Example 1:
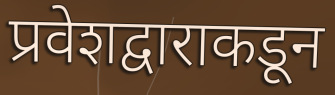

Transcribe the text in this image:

प्रवेशद्वाराकडून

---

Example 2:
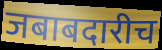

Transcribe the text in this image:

जबाबदारीच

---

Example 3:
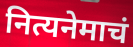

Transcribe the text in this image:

नित्यनेमाचं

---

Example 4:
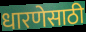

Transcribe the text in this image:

धारणेसाठी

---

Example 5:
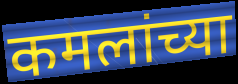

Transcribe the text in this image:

कमलांच्या